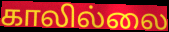
காலில்லை